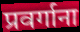
प्रवर्गाना